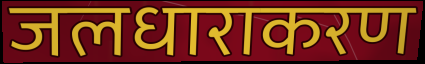
जलधाराकरण